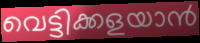
വെട്ടിക്കളയാൻ